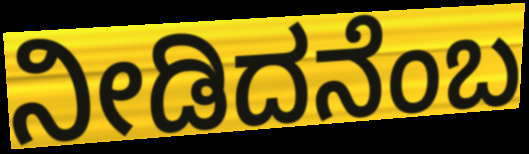
ನೀಡಿದನೆಂಬ